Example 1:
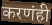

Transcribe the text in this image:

करणंही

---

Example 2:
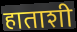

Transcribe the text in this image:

हाताशी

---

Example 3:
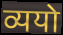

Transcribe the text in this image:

व्ययो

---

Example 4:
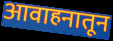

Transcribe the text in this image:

आवाहनातून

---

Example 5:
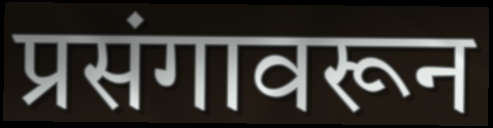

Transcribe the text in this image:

प्रसंगावरून